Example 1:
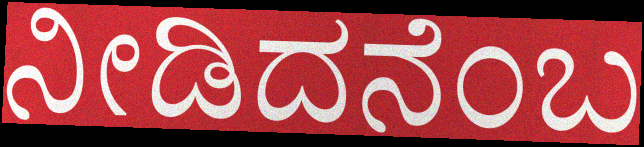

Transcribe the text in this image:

ನೀಡಿದನೆಂಬ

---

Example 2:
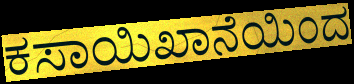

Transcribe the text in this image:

ಕಸಾಯಿಖಾನೆಯಿಂದ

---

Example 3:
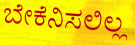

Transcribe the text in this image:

ಬೇಕೆನಿಸಲಿಲ್ಲ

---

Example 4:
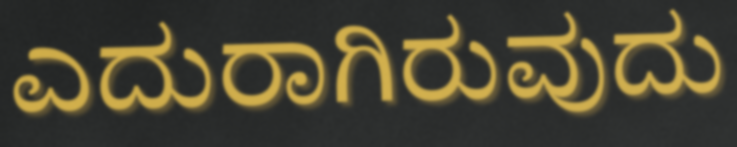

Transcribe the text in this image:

ಎದುರಾಗಿರುವುದು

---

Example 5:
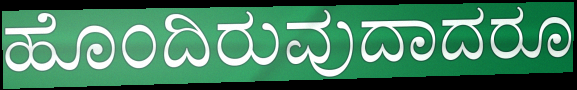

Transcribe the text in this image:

ಹೊಂದಿರುವುದಾದರೂ